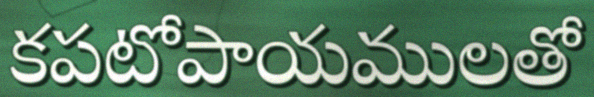
కపటోపాయములతో